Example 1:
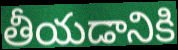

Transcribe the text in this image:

తీయడానికి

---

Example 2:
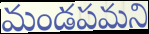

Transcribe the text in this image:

మండపమని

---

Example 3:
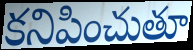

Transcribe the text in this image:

కనిపించుతూ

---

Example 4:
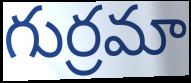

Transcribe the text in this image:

గుర్రమా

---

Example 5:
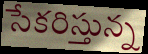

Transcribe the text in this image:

సేకరిస్తున్న